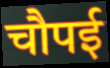
चौपई